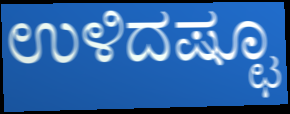
ಉಳಿದಷ್ಟೂ